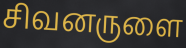
சிவனருளை